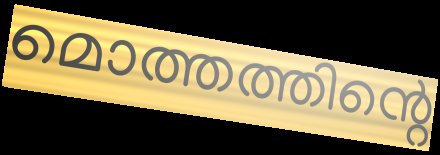
മൊത്തത്തിന്റെ